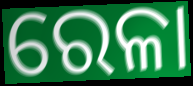
ରେଳା